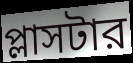
প্লাসটার